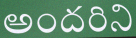
అందరిని